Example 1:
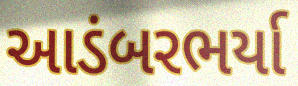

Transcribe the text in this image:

આડંબરભર્યા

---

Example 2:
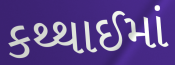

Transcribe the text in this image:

કથ્થાઈમાં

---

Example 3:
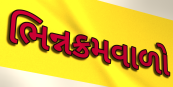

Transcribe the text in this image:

ભિન્નક્રમવાળો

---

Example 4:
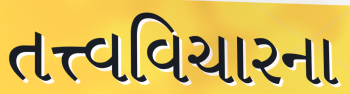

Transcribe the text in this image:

તત્ત્વવિચારના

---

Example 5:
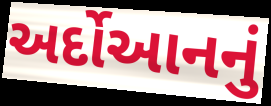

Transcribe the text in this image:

અર્દોઆનનું